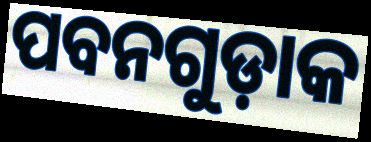
ପବନଗୁଡ଼ାକ